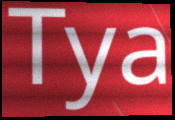
Tya